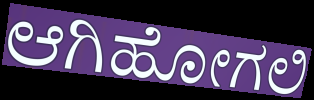
ಆಗಿಹೋಗಲಿ